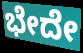
ಭೇದೇ